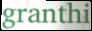
granthi